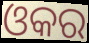
ଓକର